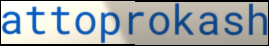
attoprokash